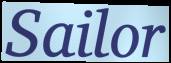
Sailor